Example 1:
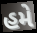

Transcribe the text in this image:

હમે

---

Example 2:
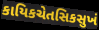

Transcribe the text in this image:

કાયિકચેતસિકસુખં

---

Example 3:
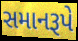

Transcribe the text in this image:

સમાનરૂપે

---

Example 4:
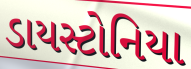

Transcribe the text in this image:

ડાયસ્ટોનિયા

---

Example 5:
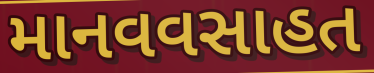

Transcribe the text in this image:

માનવવસાહત